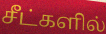
சீட்களில்